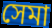
সেমা